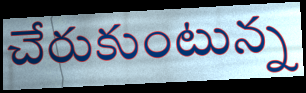
చేరుకుంటున్న